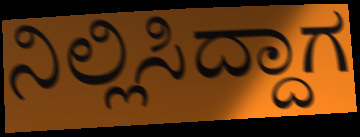
ನಿಲ್ಲಿಸಿದ್ದಾಗ